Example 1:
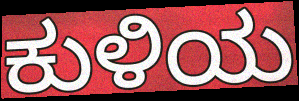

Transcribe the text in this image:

ಕುಳಿಯ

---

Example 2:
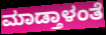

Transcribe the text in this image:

ಮಾಡ್ತಾಳಂತೆ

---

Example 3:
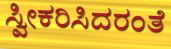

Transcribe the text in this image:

ಸ್ವೀಕರಿಸಿದರಂತೆ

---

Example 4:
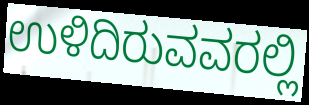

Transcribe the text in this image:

ಉಳಿದಿರುವವರಲ್ಲಿ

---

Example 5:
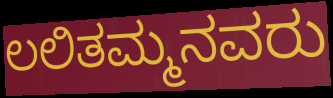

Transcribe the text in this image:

ಲಲಿತಮ್ಮನವರು